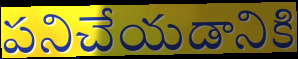
పనిచేయడానికి